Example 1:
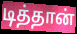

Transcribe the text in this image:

டித்தான்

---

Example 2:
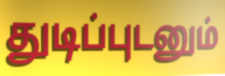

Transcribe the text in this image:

துடிப்புடனும்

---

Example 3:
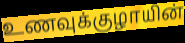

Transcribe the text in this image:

உணவுக்குழாயின்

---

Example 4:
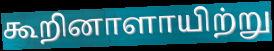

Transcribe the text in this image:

கூறினாளாயிற்று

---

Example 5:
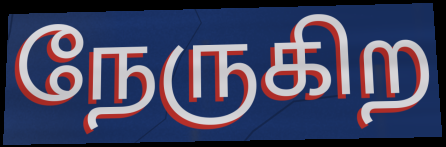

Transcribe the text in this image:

நேருகிற